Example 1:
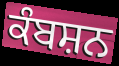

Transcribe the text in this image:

ਕੰਬਸ਼ਨ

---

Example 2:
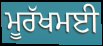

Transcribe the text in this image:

ਮੂਰੱਖਮਈ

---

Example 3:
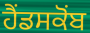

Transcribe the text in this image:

ਹੈਂਡਸਕੋਂਬ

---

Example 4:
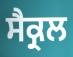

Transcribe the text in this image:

ਸੈਕ੍ਰਲ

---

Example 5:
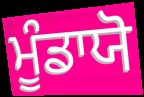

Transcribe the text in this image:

ਮੂੰਡਾਯੋ